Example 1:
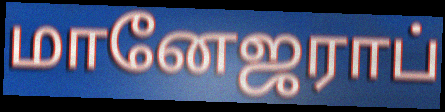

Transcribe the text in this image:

மானேஜராப்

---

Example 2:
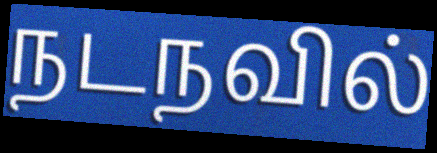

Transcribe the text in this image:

நடநவில்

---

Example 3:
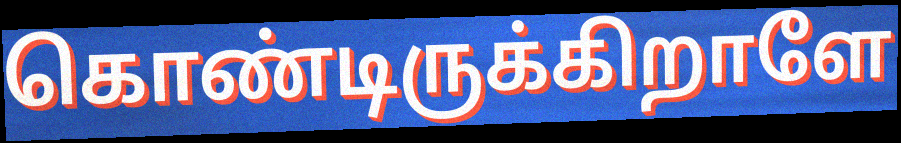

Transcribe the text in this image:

கொண்டிருக்கிறாளே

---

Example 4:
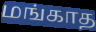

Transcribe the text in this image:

மங்காத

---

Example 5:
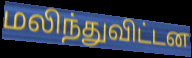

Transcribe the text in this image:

மலிந்துவிட்டன